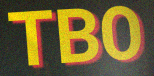
TBO